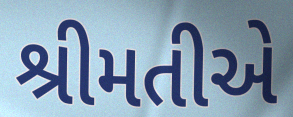
શ્રીમતીએ